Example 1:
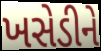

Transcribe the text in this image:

ખસેડીને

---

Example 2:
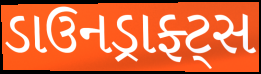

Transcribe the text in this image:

ડાઉનડ્રાફ્ટ્સ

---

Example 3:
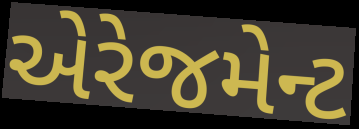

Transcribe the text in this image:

એરેજમેન્ટ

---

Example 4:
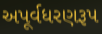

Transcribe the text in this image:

અપૂર્વધરણરૂપ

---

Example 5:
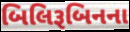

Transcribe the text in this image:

બિલિરૂબિનના